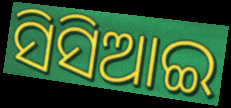
ସିସିଆଇ